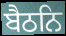
ਬੈਠਨਿ